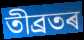
তীব্ৰতৰ